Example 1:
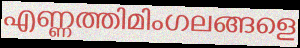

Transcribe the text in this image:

എണ്ണത്തിമിംഗലങ്ങളെ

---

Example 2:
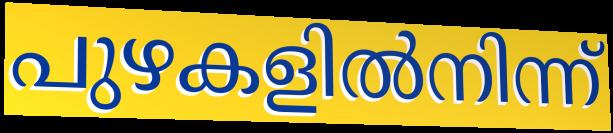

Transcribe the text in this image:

പുഴകളിൽനിന്ന്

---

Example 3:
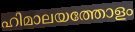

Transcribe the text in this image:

ഹിമാലയത്തോളം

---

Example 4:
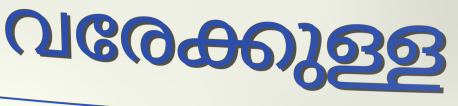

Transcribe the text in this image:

വരേക്കുള്ള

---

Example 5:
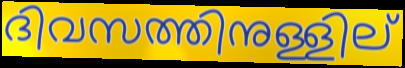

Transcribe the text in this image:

ദിവസത്തിനുള്ളില്